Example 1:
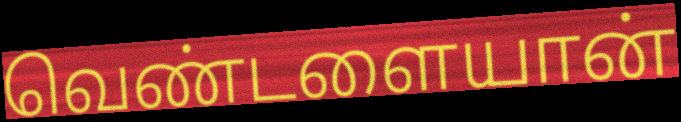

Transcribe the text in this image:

வெண்டளையான்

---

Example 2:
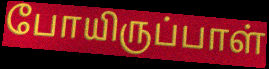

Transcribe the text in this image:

போயிருப்பாள்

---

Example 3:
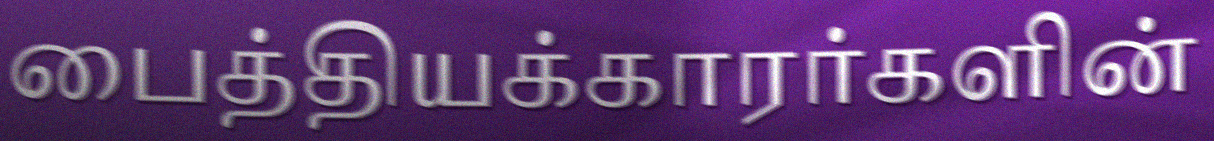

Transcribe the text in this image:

பைத்தியக்காரர்களின்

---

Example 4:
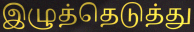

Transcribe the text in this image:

இழுத்தெடுத்து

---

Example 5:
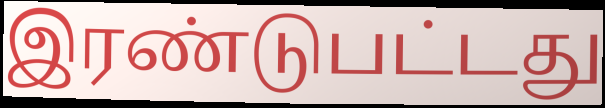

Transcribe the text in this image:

இரண்டுபட்டது